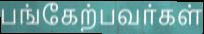
பங்கேற்பவர்கள்